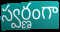
స్వర్ణంగా